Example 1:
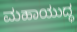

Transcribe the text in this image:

ಮಹಾಯುದ್ಧ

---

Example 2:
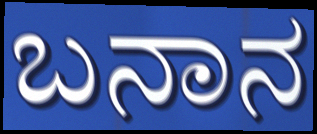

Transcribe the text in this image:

ಬನಾನ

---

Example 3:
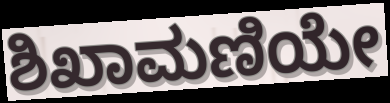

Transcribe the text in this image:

ಶಿಖಾಮಣಿಯೇ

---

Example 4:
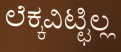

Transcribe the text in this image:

ಲೆಕ್ಕವಿಟ್ಟಿಲ್ಲ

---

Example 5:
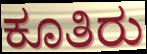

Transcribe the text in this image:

ಕೂತಿರು